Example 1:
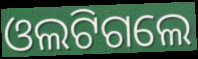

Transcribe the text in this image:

ଓଲଟିଗଲେ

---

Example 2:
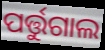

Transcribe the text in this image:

ପର୍ତ୍ତୁଗାଲ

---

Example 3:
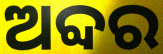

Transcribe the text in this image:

ଅବ୍ଦର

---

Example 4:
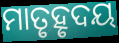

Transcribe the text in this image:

ମାତୃହୃଦୟ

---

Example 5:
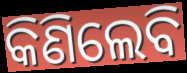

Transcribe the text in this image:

କିଣିଲେବି